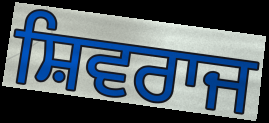
ਸ਼ਿਵਰਾਜ